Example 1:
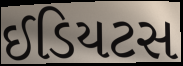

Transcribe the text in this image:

ઈડિયટસ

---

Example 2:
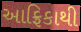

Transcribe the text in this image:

આફ્રિકાથી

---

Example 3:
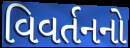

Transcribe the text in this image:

વિવર્તનનો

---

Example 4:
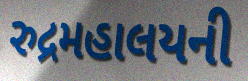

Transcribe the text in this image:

રુદ્રમહાલયની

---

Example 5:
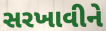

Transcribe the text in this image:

સરખાવીને